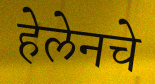
हेलेनचे